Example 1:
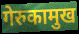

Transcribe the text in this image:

गेरुकामुख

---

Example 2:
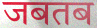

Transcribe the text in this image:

जबतब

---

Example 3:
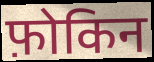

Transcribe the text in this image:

फ़ोकिन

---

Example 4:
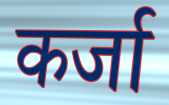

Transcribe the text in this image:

कर्जा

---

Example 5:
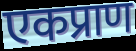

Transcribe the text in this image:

एकप्राण